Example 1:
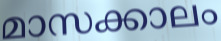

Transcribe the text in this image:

മാസക്കാലം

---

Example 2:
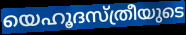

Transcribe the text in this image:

യെഹൂദസ്ത്രീയുടെ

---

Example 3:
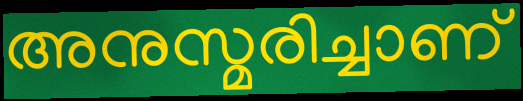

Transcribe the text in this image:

അനുസ്മരിച്ചാണ്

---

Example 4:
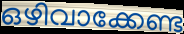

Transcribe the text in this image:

ഒഴിവാക്കേണ്ട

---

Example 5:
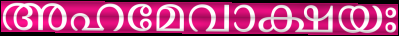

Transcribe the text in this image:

അഹമേവാക്ഷയഃ